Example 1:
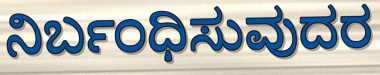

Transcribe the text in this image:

ನಿರ್ಬಂಧಿಸುವುದರ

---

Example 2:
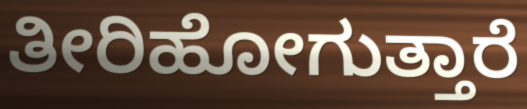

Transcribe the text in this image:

ತೀರಿಹೋಗುತ್ತಾರೆ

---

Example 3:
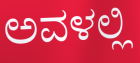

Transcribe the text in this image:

ಅವಳಲ್ಲಿ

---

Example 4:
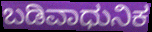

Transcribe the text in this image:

ಬಡಿವಾಧುನಿಕ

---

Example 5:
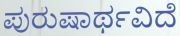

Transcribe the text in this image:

ಪುರುಷಾರ್ಥವಿದೆ